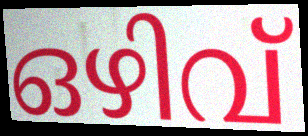
ഒഴിവ്